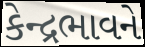
કેન્દ્રભાવને